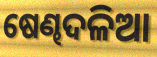
ଷେଣ୍ଢଦଳିଆ